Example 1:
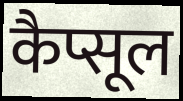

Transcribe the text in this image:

कैप्सूल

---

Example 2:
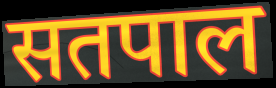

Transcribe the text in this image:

सतपाल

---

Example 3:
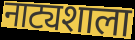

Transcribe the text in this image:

नाट्यशाला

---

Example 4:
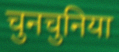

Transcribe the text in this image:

चुनचुनिया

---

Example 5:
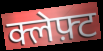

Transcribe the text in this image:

क्लेफ़्ट